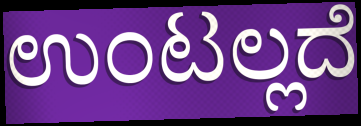
ಉಂಟಲ್ಲದೆ